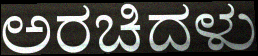
ಅರಚಿದಳು